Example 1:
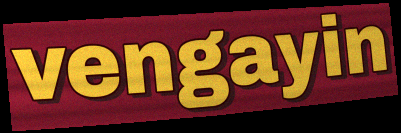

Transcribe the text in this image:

vengayin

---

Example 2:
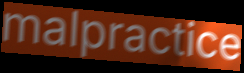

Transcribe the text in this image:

malpractice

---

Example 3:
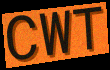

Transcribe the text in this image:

CWT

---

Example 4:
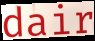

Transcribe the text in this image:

dair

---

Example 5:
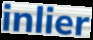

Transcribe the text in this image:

inlier